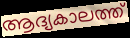
ആദ്യകാലത്ത്